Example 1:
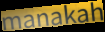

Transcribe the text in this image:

manakah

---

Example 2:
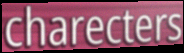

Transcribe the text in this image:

charecters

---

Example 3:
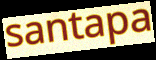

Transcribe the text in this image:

santapa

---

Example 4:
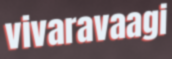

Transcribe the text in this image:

vivaravaagi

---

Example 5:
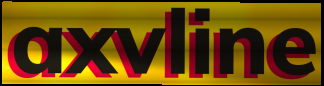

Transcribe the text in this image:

axvline